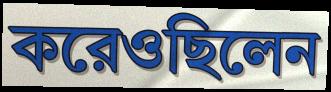
করেওছিলেন